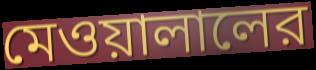
মেওয়ালালের